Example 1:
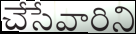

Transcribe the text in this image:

చేసేవారిని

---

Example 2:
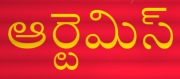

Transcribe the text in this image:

ఆర్టెమిస్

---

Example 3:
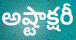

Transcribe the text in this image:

అష్టాక్షరీ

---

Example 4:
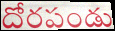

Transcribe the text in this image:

దోరపండు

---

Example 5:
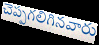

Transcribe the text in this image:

చెప్పగలిగినవారు